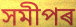
সমীপৰ